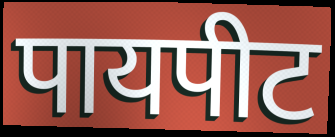
पायपीट